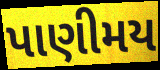
પાણીમય